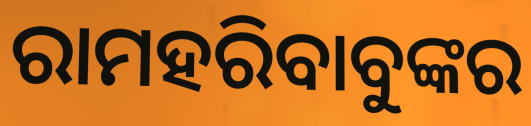
ରାମହରିବାବୁଙ୍କର